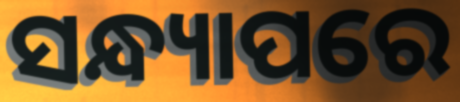
ସନ୍ଧ୍ୟାପରେ